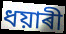
ধয়াৰী